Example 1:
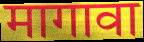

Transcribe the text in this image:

मागावा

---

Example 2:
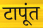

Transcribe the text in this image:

टापूंत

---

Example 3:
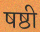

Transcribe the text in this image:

षष्ठी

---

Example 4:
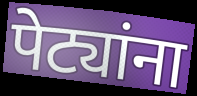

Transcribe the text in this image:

पेट्यांना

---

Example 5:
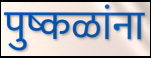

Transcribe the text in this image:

पुष्कळांना